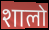
शालो